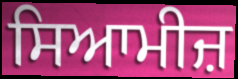
ਸਿਆਮੀਜ਼